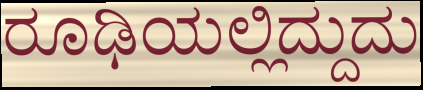
ರೂಢಿಯಲ್ಲಿದ್ದುದು